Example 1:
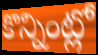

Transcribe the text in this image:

కొన్నింట్లో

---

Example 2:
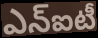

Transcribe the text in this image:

ఎన్ఐటీ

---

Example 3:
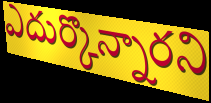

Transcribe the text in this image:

ఎదుర్కొన్నారని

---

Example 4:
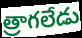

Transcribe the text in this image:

త్రాగలేడు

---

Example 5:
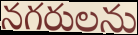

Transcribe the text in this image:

నగరులను